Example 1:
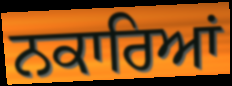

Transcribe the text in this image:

ਨਕਾਰਿਆਂ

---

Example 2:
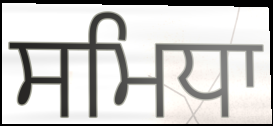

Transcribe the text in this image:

ਸਮਿਧਾ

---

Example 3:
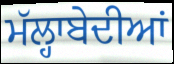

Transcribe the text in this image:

ਮੱਲ੍ਹਾਬੇਦੀਆਂ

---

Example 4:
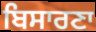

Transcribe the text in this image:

ਬਿਸਾਰਣਾ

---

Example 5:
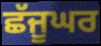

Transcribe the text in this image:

ਛੱਜੂਘਰ